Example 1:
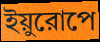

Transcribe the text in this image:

ইয়ুরোপে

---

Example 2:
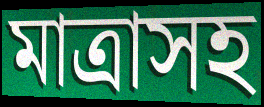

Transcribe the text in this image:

মাত্রাসহ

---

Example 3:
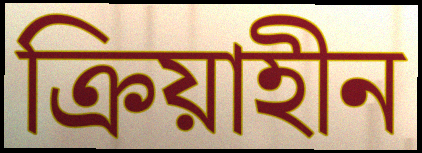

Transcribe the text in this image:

ক্রিয়াহীন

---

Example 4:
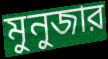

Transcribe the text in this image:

মুনুজার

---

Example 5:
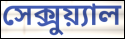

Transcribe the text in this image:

সেক্সুয়্যাল